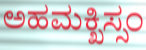
ಅಹಮಕ್ಖಿಸ್ಸಂ